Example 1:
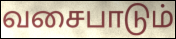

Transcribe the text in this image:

வசைபாடும்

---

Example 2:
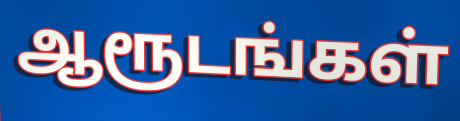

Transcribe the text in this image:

ஆரூடங்கள்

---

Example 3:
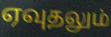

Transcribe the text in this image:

ஏவுதலும்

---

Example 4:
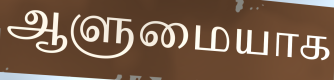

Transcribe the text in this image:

ஆளுமையாக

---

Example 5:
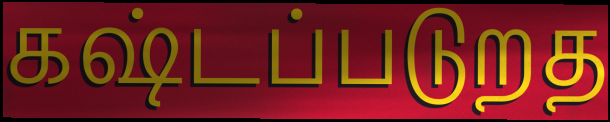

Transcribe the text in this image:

கஷ்டப்படுறத